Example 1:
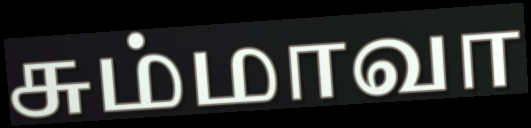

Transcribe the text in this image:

சும்மாவா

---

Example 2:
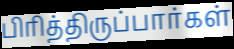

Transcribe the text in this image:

பிரித்திருப்பார்கள்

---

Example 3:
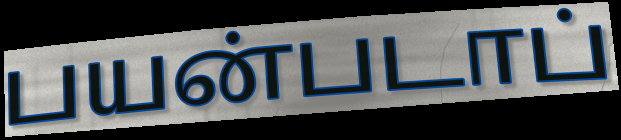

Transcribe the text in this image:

பயன்படாப்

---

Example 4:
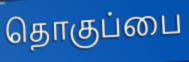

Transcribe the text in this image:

தொகுப்பை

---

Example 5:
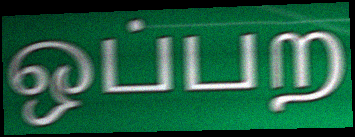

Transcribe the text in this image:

ஒப்பற